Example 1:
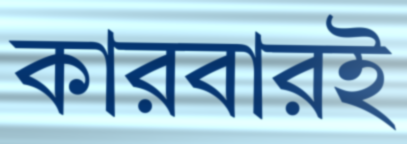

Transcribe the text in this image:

কারবারই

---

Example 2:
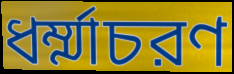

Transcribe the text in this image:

ধর্ম্মাচরণ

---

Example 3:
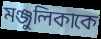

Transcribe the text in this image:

মঞ্জুলিকাকে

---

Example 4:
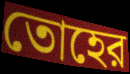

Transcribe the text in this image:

তোহের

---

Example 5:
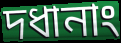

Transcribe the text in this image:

দধানাং